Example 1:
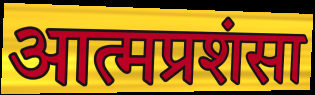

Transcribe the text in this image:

आत्मप्रशंसा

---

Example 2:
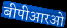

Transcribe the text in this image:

बीपीआरओ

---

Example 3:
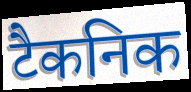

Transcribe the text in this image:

टैकनिक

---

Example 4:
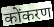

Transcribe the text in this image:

कोंकरण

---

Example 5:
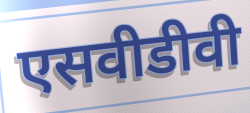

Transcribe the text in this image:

एसवीडीवी